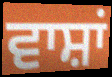
ਵਾਸ਼ਾਂ